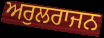
ਅਰੁਲਰਾਜਨ